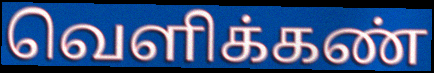
வெளிக்கண்